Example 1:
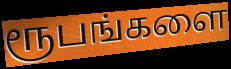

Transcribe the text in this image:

ரூபங்களை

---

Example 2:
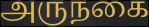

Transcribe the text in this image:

அருநகை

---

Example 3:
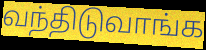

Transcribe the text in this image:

வந்திடுவாங்க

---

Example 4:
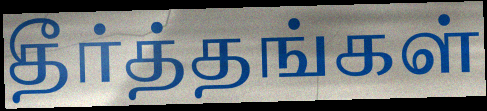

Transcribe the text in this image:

தீர்த்தங்கள்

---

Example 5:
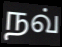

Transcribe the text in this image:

நவ்